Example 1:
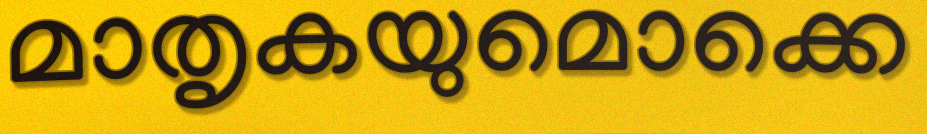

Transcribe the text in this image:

മാതൃകയുമൊക്കെ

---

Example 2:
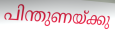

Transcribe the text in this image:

പിന്തുണയ്ക്കു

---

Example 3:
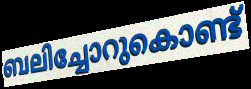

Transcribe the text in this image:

ബലിച്ചോറുകൊണ്ട്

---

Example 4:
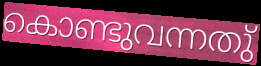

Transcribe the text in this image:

കൊണ്ടുവന്നതു്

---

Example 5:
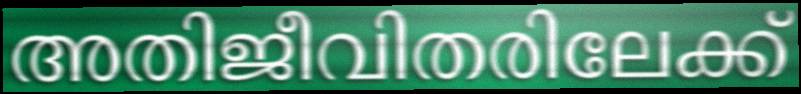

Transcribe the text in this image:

അതിജീവിതരിലേക്ക്